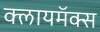
क्लायमॅक्स